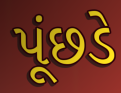
પૂંછડે